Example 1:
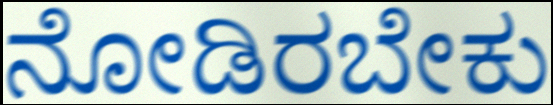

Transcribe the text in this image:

ನೋಡಿರಬೇಕು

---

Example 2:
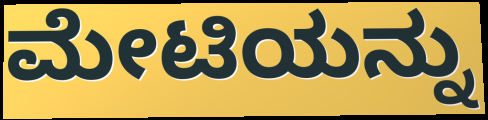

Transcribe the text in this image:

ಮೇಟಿಯನ್ನು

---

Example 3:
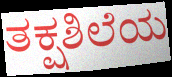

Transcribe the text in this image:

ತಕ್ಷಶಿಲೆಯ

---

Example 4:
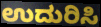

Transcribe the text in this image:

ಉದುರಿಸಿ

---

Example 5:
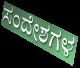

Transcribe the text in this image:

ಸಂದೇಶಗಳ